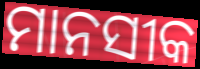
ମାନସୀକ